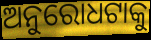
ଅନୁରୋଧଟାକୁ